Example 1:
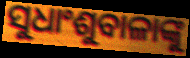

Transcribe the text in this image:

ସୁଧାଂଶୁବାଳାଙ୍କୁ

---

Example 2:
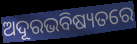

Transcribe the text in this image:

ଅଦୂରଭବିଷ୍ୟତରେ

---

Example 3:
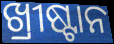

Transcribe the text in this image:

ଖ୍ରୀଷ୍ଟାନ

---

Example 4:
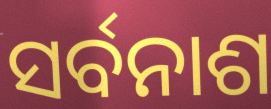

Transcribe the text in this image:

ସର୍ବନାଶ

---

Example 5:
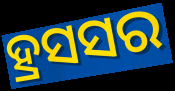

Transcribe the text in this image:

ହ୍ରସସର